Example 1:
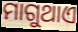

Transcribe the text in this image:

ମାଗୁଥାଏ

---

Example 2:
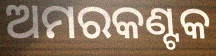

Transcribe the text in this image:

ଅମରକଣ୍ଟକ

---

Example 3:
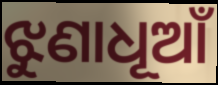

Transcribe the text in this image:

ଝୁଣାଧୂଆଁ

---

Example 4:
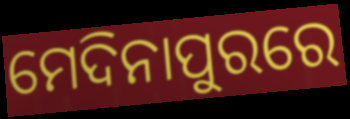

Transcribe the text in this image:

ମେଦିନାପୁରରେ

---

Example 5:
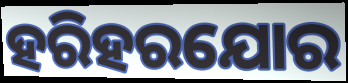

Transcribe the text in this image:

ହରିହରଯୋର